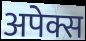
अपेक्स